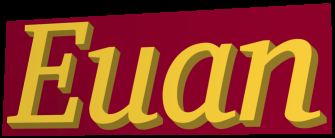
Euan